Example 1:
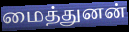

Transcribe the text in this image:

மைத்துனன்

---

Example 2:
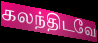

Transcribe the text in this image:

கலந்திடவே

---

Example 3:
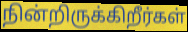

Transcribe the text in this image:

நின்றிருக்கிறீர்கள்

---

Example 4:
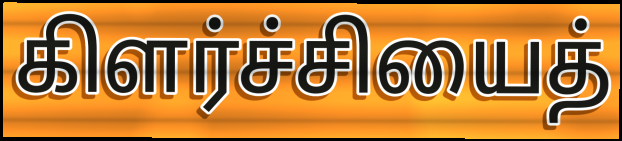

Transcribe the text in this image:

கிளர்ச்சியைத்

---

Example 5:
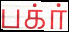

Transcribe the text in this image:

பக்ர்